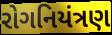
રોગનિયંત્રણ